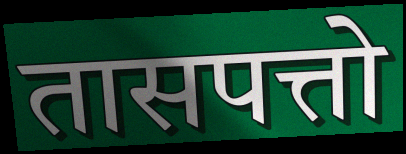
तासपत्तो